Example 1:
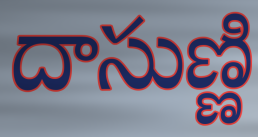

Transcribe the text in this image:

దాసుణ్ణి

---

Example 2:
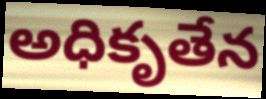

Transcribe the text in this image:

అధికృతేన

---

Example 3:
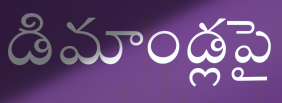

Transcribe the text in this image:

డిమాండ్లపై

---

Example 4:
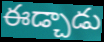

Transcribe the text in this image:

ఈడ్చాడు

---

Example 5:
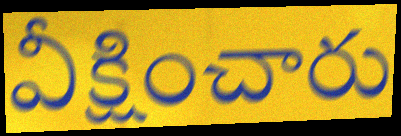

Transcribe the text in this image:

వీక్షించారు